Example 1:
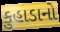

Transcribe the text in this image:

કુહાડાનો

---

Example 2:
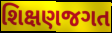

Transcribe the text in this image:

શિક્ષણજગત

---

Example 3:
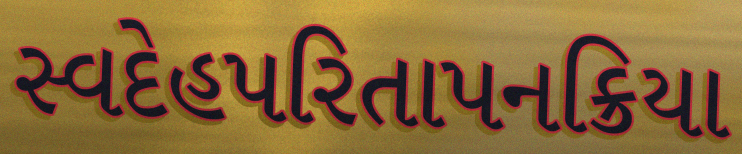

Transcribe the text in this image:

સ્વદેહપરિતાપનક્રિયા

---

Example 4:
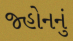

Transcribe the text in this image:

જ્હોનનું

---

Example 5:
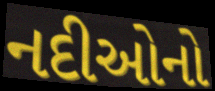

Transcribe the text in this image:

નદીઓનો